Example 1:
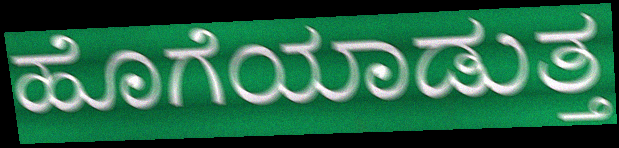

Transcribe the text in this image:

ಹೊಗೆಯಾಡುತ್ತ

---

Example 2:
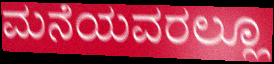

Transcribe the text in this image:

ಮನೆಯವರಲ್ಲೂ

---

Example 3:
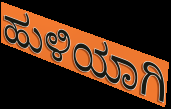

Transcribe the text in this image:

ಹುಳಿಯಾಗಿ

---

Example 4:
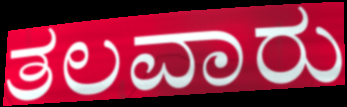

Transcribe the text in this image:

ತಲವಾರು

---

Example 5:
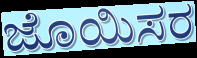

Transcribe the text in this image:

ಜೊಯಿಸರ